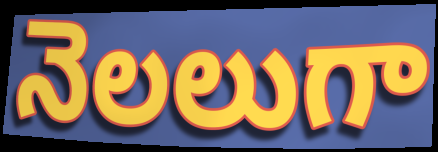
నెలలుగా